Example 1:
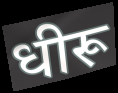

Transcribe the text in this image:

धीरू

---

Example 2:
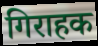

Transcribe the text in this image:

गिराहक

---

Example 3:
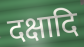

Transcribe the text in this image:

दक्षादि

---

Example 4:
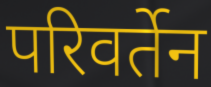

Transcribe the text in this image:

परिवर्तेन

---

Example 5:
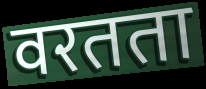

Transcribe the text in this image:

वरतता